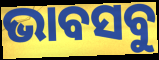
ଭାବସବୁ